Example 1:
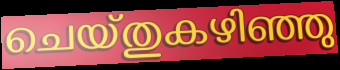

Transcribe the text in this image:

ചെയ്തുകഴിഞ്ഞു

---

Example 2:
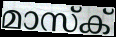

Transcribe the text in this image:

മാസ്ക്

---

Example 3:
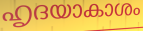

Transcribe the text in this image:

ഹൃദയാകാശം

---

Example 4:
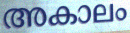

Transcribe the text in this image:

അകാലം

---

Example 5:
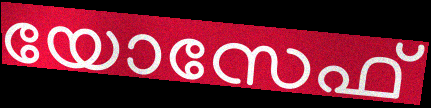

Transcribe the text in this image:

യോസേഫ്